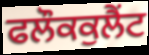
ਫਲੌਕਕੁਲੈਂਟ